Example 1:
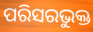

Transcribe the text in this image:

ପରିସରଭୁକ୍ତ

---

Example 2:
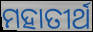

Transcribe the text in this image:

ମହାତୀର୍ଥ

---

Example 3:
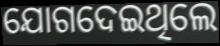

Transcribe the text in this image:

ଯୋଗଦେଇଥିଲେ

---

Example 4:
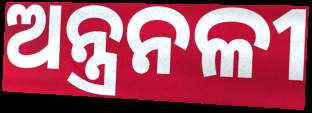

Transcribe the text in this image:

ଅନ୍ତ୍ରନଳୀ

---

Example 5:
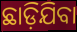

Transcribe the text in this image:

ଛାଡ଼ିଯିବା